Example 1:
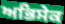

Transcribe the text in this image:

ਅਭਿਸੇਕ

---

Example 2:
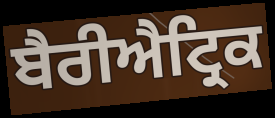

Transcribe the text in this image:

ਬੈਰੀਐਟ੍ਰਿਕ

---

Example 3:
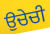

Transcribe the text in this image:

ਉਚੇਚੀ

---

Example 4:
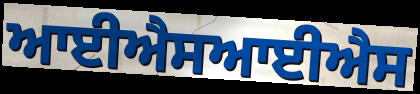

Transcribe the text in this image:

ਆਈਐਸਆਈਐਸ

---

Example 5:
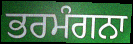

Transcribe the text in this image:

ਭਰਮੰਗਨਾ